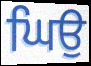
ਘਿਉ